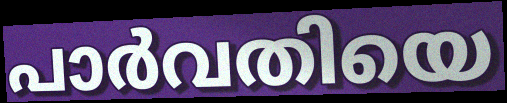
പാർവതിയെ